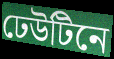
ঢেউটিনে